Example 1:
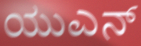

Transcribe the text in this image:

ಯುಎನ್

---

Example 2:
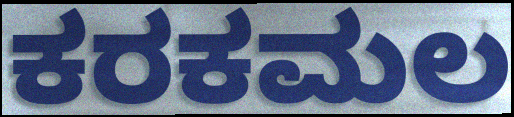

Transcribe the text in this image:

ಕರಕಮಲ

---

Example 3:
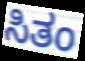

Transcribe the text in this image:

ಸಿತಂ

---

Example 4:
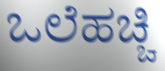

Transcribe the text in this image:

ಒಲೆಹಚ್ಚಿ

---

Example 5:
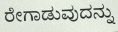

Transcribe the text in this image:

ರೇಗಾಡುವುದನ್ನು